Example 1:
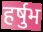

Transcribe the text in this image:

हर्षुभ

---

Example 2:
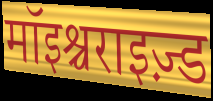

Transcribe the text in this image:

मॉइश्चराइज़्ड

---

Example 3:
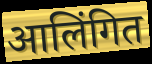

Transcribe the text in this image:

आलिंगित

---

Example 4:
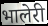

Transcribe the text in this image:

भालेरी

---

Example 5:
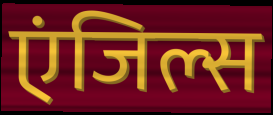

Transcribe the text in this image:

एंजिल्‍स